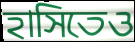
হাসিতেও